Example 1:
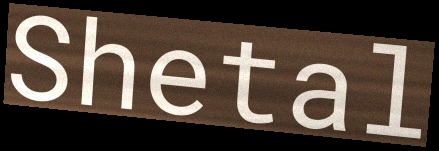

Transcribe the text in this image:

Shetal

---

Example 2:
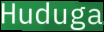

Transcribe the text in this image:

Huduga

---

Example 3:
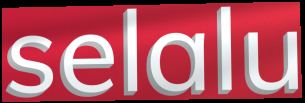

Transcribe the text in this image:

selalu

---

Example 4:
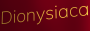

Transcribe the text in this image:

Dionysiaca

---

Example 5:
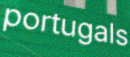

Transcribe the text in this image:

portugals